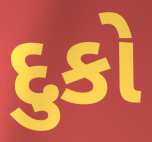
દુકો